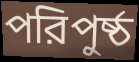
পরিপুষ্ঠ